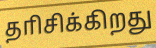
தரிசிக்கிறது